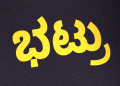
ಭಟ್ರು